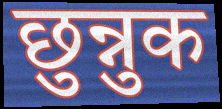
छुन्नुक